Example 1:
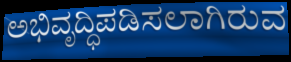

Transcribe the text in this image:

ಅಭಿವೃದ್ಧಿಪಡಿಸಲಾಗಿರುವ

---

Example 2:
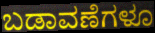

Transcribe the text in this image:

ಬಡಾವಣೆಗಳೂ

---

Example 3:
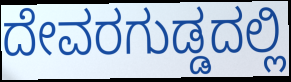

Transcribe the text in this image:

ದೇವರಗುಡ್ಡದಲ್ಲಿ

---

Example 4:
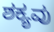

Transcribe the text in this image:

ಶಕ್ಯವು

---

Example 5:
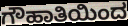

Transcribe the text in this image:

ಗೌಹಾತಿಯಿಂದ